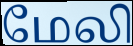
மேலி